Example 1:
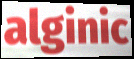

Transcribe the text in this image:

alginic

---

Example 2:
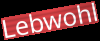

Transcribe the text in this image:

Lebwohl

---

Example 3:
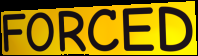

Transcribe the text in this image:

FORCED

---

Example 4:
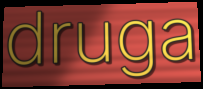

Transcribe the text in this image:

druga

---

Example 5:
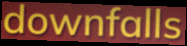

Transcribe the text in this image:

downfalls